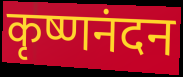
कृष्णनंदन